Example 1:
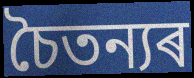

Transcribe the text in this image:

চৈতন্যৰ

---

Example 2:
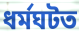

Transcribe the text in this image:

ধৰ্মঘটত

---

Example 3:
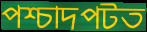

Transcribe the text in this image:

পশ্চাদপটত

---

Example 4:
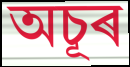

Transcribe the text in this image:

অচূৰ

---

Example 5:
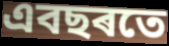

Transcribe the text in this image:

এবছৰতে